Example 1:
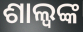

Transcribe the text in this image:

ଶାଲ୍ୱଙ୍କ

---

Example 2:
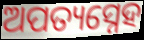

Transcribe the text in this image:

ଅପତ୍ୟସ୍ନେହ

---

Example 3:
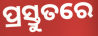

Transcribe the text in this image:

ପ୍ରସ୍ତୁତରେ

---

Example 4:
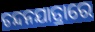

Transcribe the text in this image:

ଚନ୍ଦନଯାତ୍ରାରେ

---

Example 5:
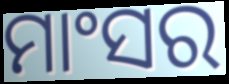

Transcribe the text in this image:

ମାଂସର